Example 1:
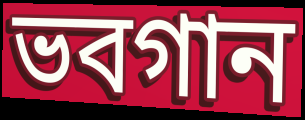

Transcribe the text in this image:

ভবগান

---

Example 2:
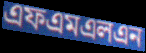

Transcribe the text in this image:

এফএমএলএন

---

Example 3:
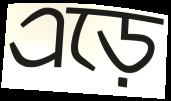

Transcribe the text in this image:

এড়ে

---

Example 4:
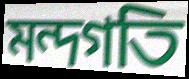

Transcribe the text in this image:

মন্দগতি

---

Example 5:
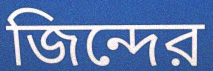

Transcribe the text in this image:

জিন্দের